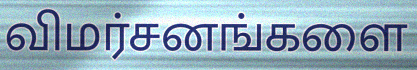
விமர்சனங்களை